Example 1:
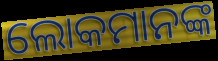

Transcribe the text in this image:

ଲୋକମାନଙ୍କ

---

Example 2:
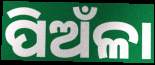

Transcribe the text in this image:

ପିଅଁଳା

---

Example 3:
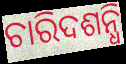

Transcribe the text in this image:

ଚାରିଦଶନ୍ଧି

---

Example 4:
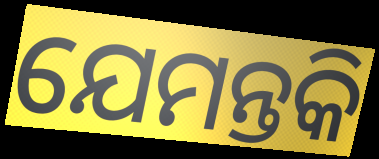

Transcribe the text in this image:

ଯେମନ୍ତକି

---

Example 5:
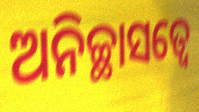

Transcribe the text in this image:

ଅନିଚ୍ଛାସତ୍ୱେ